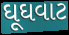
ઘૂઘવાટ